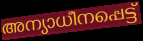
അന്യാധീനപ്പെട്ട്